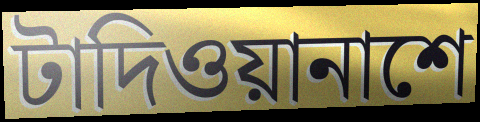
টাদিওয়ানাশে